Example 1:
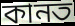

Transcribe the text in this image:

কানত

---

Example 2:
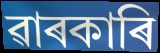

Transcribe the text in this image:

ৱাৰকাৰি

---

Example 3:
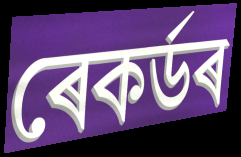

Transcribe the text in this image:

ৰেকৰ্ডৰ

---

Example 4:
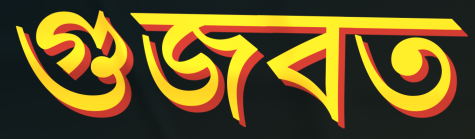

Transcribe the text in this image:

গুজবত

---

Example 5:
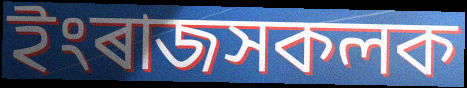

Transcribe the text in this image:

ইংৰাজসকলক